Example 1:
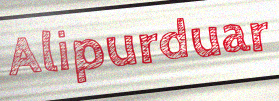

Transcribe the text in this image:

Alipurduar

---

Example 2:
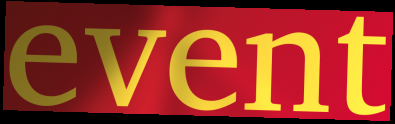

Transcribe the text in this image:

event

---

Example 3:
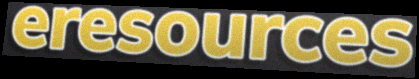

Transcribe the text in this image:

eresources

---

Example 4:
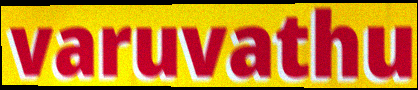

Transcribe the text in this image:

varuvathu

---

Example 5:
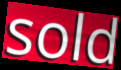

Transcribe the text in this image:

sold